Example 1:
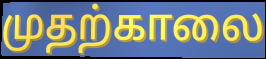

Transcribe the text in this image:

முதற்காலை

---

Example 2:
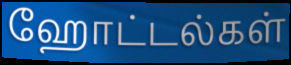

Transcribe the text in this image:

ஹோட்டல்கள்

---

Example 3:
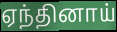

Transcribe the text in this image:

ஏந்தினாய்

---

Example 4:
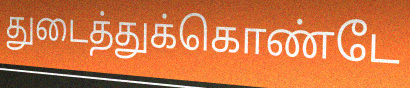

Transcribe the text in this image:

துடைத்துக்கொண்டே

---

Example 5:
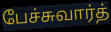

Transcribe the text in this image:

பேச்சுவார்த்